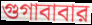
গুগাবাবার